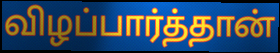
விழப்பார்த்தான்